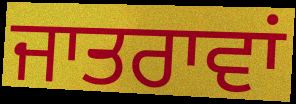
ਜਾਤਰਾਵਾਂ